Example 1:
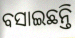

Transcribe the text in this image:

ବସାଇଛନ୍ତି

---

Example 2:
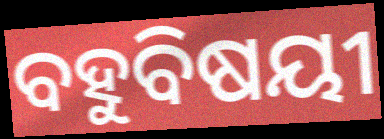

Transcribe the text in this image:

ବହୁବିଷୟୀ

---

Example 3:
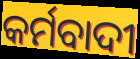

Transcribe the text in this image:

କର୍ମବାଦୀ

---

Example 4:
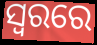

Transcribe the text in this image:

ସ୍ବରରେ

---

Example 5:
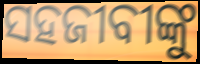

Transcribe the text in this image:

ସହଜୀବୀଙ୍କୁ